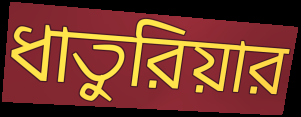
ধাতুরিয়ার